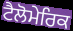
ਟੈਲੋਮੇਰਿਕ